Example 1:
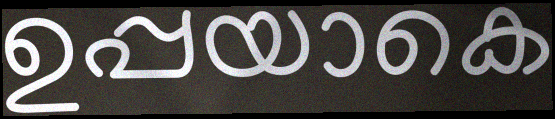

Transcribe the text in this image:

ഉപ്പയാകെ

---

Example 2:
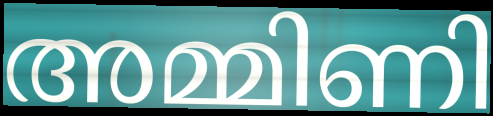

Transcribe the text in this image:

അമ്മിണി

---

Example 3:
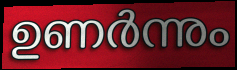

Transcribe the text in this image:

ഉണർന്നും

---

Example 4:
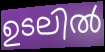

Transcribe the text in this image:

ഉടലിൽ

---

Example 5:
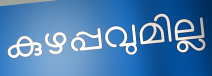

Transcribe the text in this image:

കുഴപ്പവുമില്ല